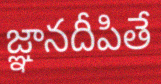
జ్ఞానదీపితే